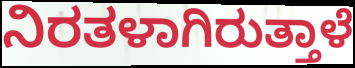
ನಿರತಳಾಗಿರುತ್ತಾಳೆ